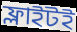
ফ্লাইটই